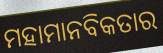
ମହାମାନବିକତାର